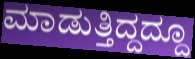
ಮಾಡುತ್ತಿದ್ದದ್ದೂ